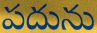
పదును